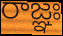
రాజ్ఞః